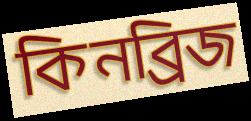
কিনব্রিজ